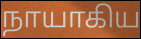
நாயாகிய